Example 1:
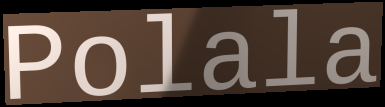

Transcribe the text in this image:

Polala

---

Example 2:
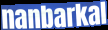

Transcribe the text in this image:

nanbarkal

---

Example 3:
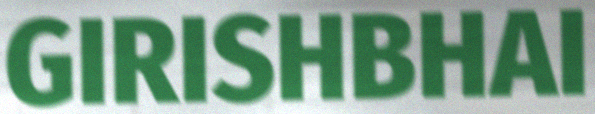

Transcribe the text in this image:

GIRISHBHAI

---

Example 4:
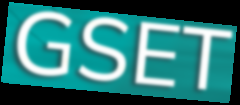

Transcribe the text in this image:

GSET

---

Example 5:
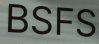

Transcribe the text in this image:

BSFS